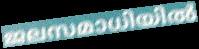
ജലസമാധിയിൽ